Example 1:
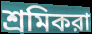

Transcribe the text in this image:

শ্রমিকরা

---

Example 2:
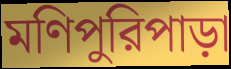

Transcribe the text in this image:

মণিপুরিপাড়া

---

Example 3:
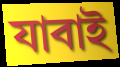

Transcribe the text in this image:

যাবাই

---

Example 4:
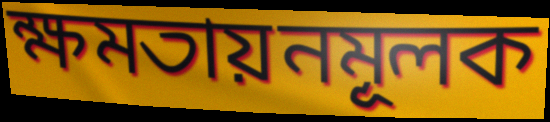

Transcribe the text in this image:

ক্ষমতায়নমূলক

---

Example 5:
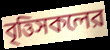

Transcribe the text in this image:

বৃত্তিসকলের